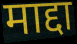
माद्दा